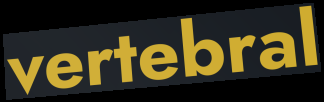
vertebral